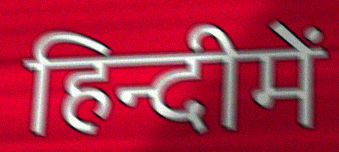
हिन्दीमें